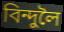
বিন্দুলৈ